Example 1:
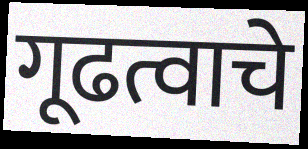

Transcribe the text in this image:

गूढत्वाचे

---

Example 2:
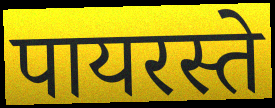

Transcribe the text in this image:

पायरस्ते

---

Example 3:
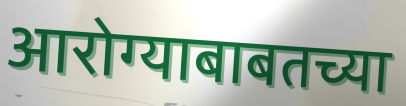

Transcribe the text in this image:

आरोग्याबाबतच्या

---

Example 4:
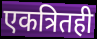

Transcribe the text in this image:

एकत्रितही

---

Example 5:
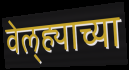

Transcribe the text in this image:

वेल्ह्याच्या